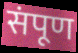
संपूण